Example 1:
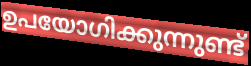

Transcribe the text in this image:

ഉപയോഗിക്കുന്നുണ്ട്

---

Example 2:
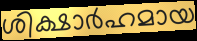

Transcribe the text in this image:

ശിക്ഷാർഹമായ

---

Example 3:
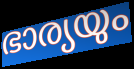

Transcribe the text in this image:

ഭാര്യയും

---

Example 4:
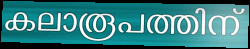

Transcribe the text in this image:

കലാരൂപത്തിന്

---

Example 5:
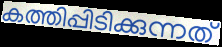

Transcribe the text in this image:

കത്തിപ്പിടിക്കുന്നത്